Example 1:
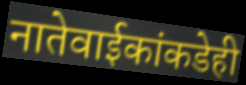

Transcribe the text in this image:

नातेवाईकांकडेही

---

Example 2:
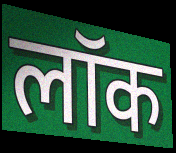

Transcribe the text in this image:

लॉक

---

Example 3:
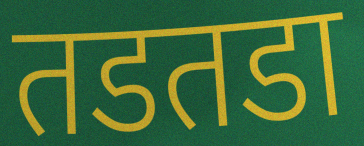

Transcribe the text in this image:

तडतडा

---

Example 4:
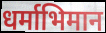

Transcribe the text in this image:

धर्माभिमान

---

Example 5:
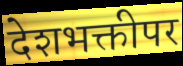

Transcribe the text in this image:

देशभक्तीपर